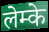
लेम्के